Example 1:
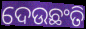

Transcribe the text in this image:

ଦେଉଛଂତି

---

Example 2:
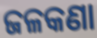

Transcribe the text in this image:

ଜଳକଣା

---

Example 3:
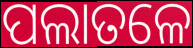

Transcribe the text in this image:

ପଲାତଳେ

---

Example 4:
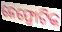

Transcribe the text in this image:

ନେଫ୍ରୋଟିକ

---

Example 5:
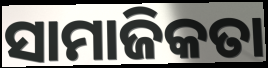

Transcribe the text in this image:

ସାମାଜିକତା